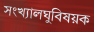
সংখ্যালঘুবিষয়ক